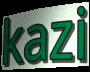
kazi